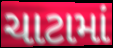
ચાટામાં